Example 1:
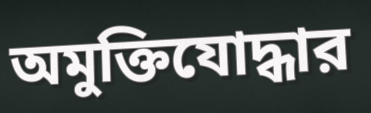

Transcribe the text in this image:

অমুক্তিযোদ্ধার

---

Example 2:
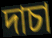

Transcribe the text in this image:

দাচা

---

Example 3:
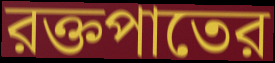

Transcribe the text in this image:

রক্তপাতের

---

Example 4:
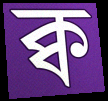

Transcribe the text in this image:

ক্ব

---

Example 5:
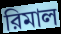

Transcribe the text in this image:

রিমাল